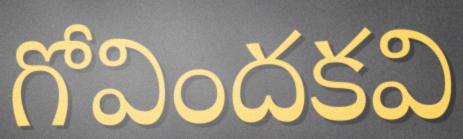
గోవిందకవి